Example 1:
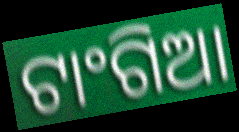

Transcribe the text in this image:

ଟାଂଗିଆ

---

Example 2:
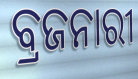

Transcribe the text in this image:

ବ୍ରଜନାରୀ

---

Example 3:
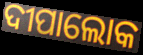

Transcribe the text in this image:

ଦୀପାଲୋକ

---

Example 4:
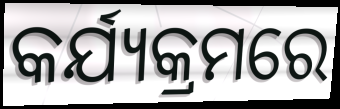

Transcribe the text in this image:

କର୍ଯ୍ୟକ୍ରମରେ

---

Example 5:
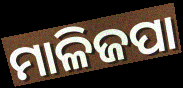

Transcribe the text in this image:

ମାଳିଜପା